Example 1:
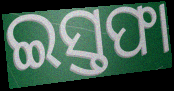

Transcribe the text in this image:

ଇସ୍ତଫା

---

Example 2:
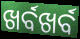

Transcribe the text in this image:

ଖର୍ବଖର୍ବ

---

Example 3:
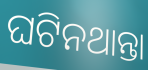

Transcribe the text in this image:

ଘଟିନଥାନ୍ତା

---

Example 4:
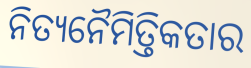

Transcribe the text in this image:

ନିତ୍ୟନୈମିତ୍ତିକତାର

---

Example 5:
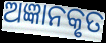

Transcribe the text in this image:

ଅଜ୍ଞାନକୃତ